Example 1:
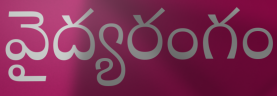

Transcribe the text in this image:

వైద్యరంగం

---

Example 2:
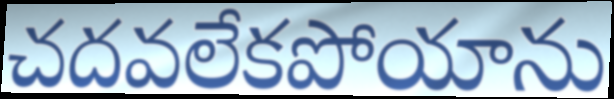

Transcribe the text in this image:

చదవలేకపోయాను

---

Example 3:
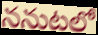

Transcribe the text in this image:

ననుటలో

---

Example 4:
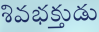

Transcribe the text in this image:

శివభక్తుడు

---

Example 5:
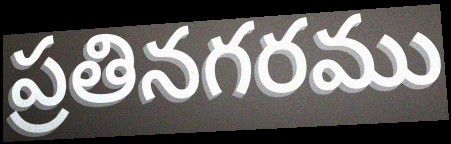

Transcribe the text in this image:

ప్రతినగరము